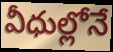
వీధుల్లోనే